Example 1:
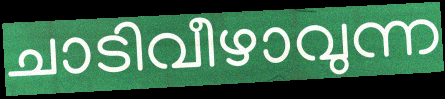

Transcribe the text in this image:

ചാടിവീഴാവുന്ന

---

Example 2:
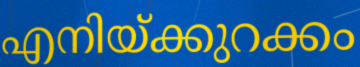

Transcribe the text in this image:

എനിയ്ക്കുറക്കം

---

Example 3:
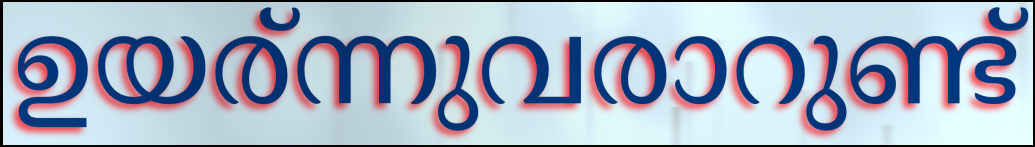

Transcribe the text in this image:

ഉയര്ന്നുവരാറുണ്ട്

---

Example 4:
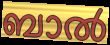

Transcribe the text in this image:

ബാൽ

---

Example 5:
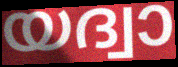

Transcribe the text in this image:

യദ്വാ